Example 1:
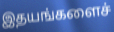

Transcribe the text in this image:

இதயங்களைச்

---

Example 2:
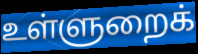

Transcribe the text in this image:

உள்ளுறைக்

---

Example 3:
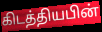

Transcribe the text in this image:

கிடத்தியபின்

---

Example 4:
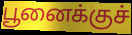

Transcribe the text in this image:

பூனைக்குச்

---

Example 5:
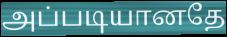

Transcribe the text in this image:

அப்படியானதே